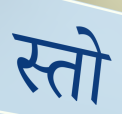
स्तो